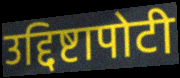
उद्दिष्टापोटी